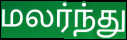
மலர்ந்து